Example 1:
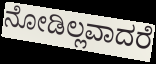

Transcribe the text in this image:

ನೋಡಿಲ್ಲವಾದರೆ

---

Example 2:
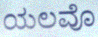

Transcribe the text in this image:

ಯಲವೊ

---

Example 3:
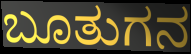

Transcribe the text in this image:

ಬೂತುಗನ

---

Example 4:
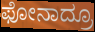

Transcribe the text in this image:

ಫೋನಾದ್ರೂ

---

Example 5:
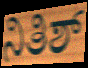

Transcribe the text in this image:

ನಿತಿಶ್